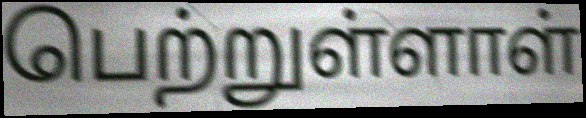
பெற்றுள்ளாள்